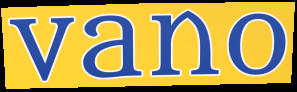
vano